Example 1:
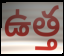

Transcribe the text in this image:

ఉత్త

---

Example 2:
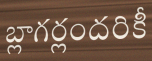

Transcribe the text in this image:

బ్లాగర్లందరికీ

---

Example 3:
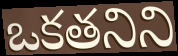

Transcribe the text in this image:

ఒకతనిని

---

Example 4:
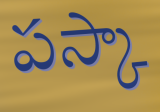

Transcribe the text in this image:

పస్కా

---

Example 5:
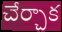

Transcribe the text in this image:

చేర్చాక